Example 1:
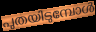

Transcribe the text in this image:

പുതയിടുമ്പോൾ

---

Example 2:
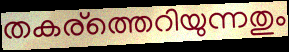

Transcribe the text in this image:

തകര്ത്തെറിയുന്നതും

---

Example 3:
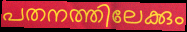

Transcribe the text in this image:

പതനത്തിലേക്കും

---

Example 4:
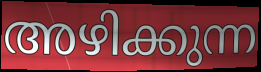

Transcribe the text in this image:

അഴിക്കുന്ന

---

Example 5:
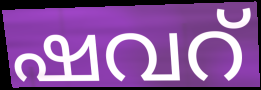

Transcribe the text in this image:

ഷവറ്